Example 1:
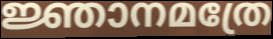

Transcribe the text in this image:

ജ്ഞാനമത്രേ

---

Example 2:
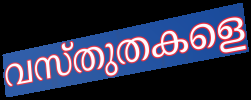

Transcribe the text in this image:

വസ്തുതകളെ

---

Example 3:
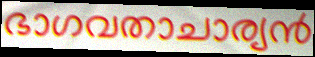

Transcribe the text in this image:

ഭാഗവതാചാര്യൻ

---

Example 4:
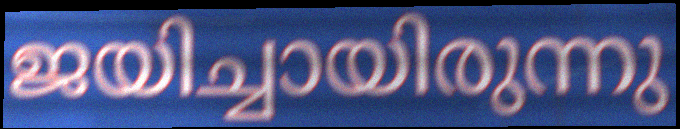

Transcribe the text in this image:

ജയിച്ചായിരുന്നു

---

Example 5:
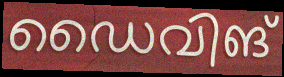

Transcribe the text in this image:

ഡൈവിങ്